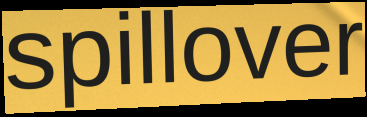
spillover